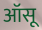
ऑसू